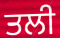
ਤਲੀ